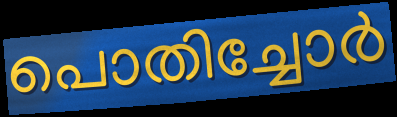
പൊതിച്ചോർ